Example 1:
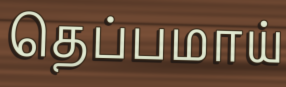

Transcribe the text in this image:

தெப்பமாய்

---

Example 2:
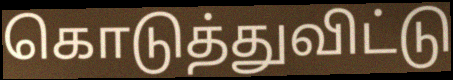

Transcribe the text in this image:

கொடுத்துவிட்டு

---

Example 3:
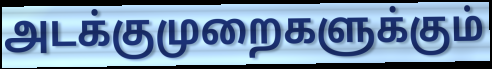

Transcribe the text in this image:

அடக்குமுறைகளுக்கும்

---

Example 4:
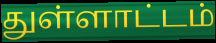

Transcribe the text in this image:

துள்ளாட்டம்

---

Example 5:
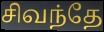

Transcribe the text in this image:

சிவந்தே